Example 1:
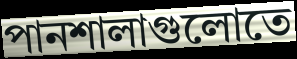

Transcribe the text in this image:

পানশালাগুলোতে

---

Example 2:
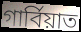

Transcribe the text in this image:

গার্বিয়াত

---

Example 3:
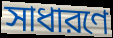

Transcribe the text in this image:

সাধারণে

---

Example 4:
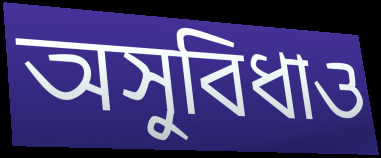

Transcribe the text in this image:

অসুবিধাও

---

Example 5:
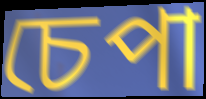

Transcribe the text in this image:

চেপা